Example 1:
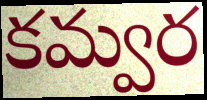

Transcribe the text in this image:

కమ్వర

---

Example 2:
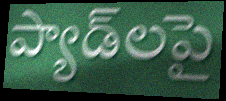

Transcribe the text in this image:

ప్యాడ్‌లపై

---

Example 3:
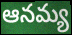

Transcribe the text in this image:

ఆనమ్య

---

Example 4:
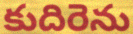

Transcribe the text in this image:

కుదిరెను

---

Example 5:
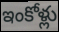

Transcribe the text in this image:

ఇంకోళ్లు